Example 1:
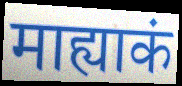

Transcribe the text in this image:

माह्याकं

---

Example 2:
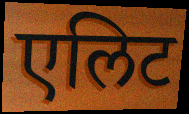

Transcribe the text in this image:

एलिट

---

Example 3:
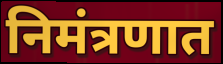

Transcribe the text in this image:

निमंत्रणात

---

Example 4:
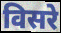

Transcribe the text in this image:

विसरे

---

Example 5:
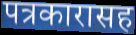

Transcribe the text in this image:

पत्रकारासह